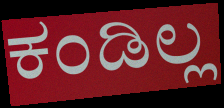
ಕಂಡಿಲ್ಲ